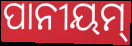
ପାନୀୟମ୍